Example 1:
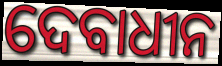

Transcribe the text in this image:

ଦେବାଧୀନ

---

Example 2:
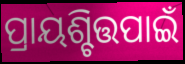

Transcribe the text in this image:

ପ୍ରାୟଶ୍ଚିତ୍ତପାଇଁ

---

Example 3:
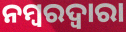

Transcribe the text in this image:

ନମ୍ବରଦ୍ୱାରା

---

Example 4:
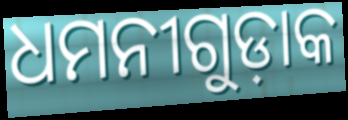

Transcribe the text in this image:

ଧମନୀଗୁଡ଼ାକ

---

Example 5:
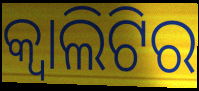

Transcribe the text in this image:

କ୍ୱାଲିଟିର